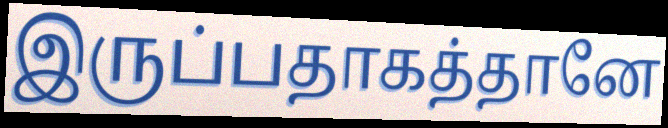
இருப்பதாகத்தானே